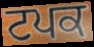
ਟਪਕ